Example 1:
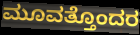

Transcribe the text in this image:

ಮೂವತ್ತೊಂದರ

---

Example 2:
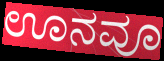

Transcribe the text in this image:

ಊನವೂ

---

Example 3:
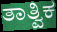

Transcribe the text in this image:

ತಾತ್ವಿಕ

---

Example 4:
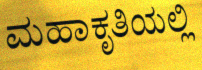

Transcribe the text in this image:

ಮಹಾಕೃತಿಯಲ್ಲಿ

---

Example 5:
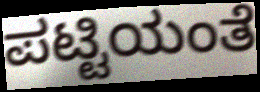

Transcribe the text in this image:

ಪಟ್ಟಿಯಂತೆ